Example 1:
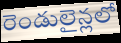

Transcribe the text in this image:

రెండులైన్లలో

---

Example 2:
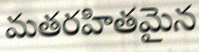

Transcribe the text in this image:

మతరహితమైన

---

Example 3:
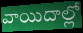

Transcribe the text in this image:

వాయిదాల్లో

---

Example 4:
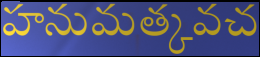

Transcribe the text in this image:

హనుమత్కవచ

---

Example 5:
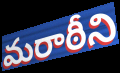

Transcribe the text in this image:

మరాఠీని